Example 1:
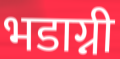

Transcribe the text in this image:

भडाग्नी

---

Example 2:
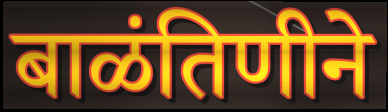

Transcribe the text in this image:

बाळंतिणीने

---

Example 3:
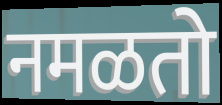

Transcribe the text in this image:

नमळतो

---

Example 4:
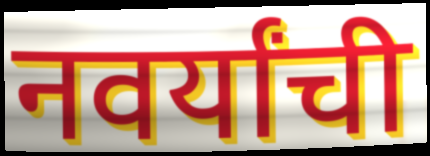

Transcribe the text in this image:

नवर्यांची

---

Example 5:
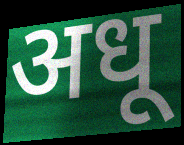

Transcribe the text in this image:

अधू